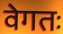
वेगतः